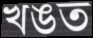
খঙত